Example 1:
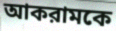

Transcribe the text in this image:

আকরামকে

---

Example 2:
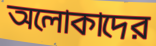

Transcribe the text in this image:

অলোকাদের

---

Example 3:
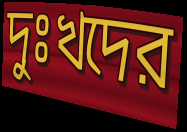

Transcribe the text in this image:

দুঃখদের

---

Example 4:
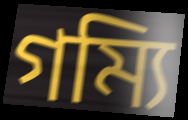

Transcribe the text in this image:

গম্যি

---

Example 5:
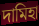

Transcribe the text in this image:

দামিহা